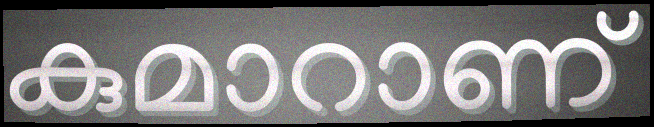
കുമാറാണ്